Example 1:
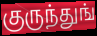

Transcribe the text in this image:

குருந்துங்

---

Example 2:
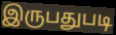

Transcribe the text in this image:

இருபதுபடி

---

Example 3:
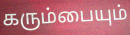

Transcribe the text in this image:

கரும்பையும்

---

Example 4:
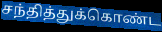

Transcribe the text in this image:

சந்தித்துக்கொண்ட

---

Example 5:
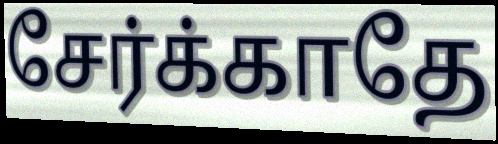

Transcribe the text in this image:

சேர்க்காதே